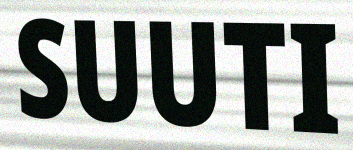
SUUTI